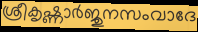
ശ്രീകൃഷ്ണാർജുനസംവാദേ